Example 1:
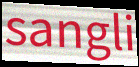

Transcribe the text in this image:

sangli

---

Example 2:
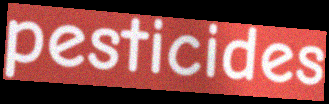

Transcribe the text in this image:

pesticides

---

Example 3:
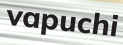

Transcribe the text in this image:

vapuchi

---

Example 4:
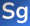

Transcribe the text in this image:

Sg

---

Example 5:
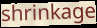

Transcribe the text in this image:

shrinkage